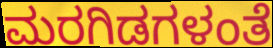
ಮರಗಿಡಗಳಂತೆ